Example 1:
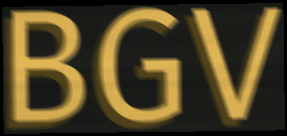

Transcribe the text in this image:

BGV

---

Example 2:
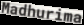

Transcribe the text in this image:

Madhurima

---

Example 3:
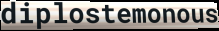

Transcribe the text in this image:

diplostemonous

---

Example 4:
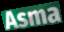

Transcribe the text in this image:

Asma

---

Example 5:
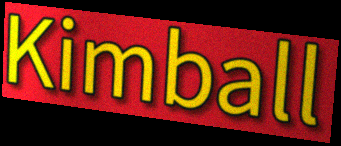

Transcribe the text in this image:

Kimball